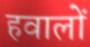
हवालों